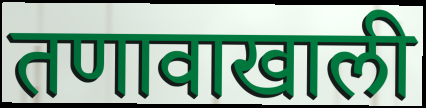
तणावाखाली